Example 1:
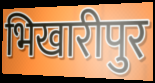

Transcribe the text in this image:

भिखारीपुर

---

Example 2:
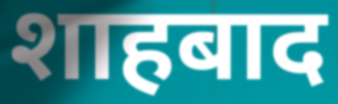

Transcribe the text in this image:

शाहबाद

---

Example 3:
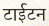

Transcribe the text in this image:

टाईटन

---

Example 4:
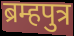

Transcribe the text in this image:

ब्रम्हपुत्र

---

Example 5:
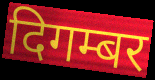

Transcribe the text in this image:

दिगम्बर